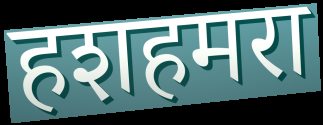
हशहमरा